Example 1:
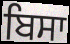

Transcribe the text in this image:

ਬਿਸਾ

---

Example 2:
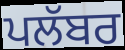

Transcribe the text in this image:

ਪਲੱਬਰ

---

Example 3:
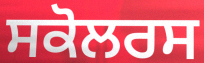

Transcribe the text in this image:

ਸਕੋਲਰਸ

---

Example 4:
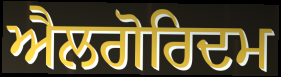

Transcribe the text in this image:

ਐਲਗੋਰਿਦਮ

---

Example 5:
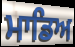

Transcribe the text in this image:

ਮਾਡਿਅ